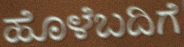
ಹೊಳೆಬದಿಗೆ